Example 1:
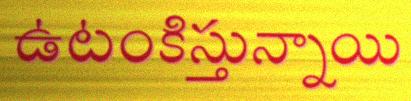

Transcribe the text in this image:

ఉటంకిస్తున్నాయి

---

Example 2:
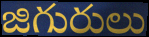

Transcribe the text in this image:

జిగురులు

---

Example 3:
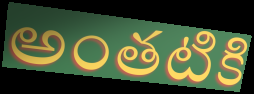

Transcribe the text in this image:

అంతటికి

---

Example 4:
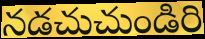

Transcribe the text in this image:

నడచుచుండిరి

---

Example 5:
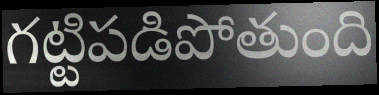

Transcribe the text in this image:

గట్టిపడిపోతుంది